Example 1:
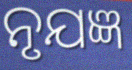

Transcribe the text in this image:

ନୃଯଜ୍ଞ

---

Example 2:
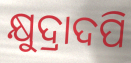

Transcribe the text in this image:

କ୍ଷୁଦ୍ରାଦପି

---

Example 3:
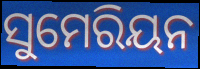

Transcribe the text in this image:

ସୁମେରିୟନ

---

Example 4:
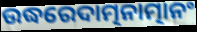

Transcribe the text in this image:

ଉଦ୍ଧରେଦାତ୍ମନାତ୍ମାନଂ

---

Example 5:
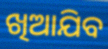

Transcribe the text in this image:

ଖିଆଯିବ